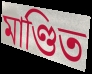
মাণ্ডিত